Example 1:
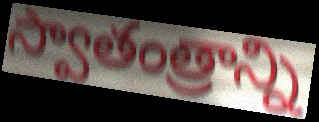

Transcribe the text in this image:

స్వాతంత్రాన్ని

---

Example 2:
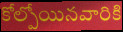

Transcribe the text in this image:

కోల్పోయినవారికి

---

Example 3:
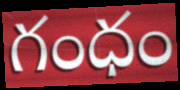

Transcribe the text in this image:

గంధం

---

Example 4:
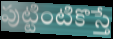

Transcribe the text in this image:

పుట్టింటికొస్తే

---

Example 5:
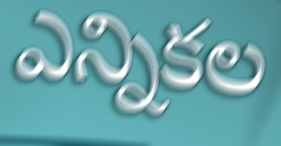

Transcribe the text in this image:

ఎన్నికల